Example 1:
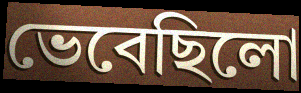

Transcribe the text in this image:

ভেবেছিলো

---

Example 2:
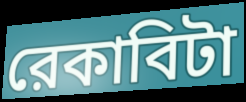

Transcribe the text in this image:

রেকাবিটা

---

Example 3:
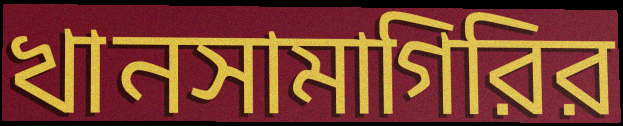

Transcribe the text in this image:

খানসামাগিরির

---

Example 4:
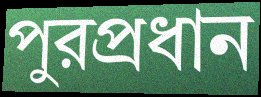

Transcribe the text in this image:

পুরপ্রধান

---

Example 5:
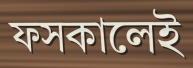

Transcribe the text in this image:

ফসকালেই